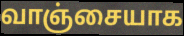
வாஞ்சையாக